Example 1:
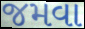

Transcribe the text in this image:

જમવા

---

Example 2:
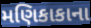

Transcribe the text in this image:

મણિકાકાના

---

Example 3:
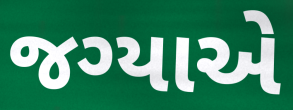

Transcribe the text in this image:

જગ્યાએ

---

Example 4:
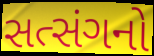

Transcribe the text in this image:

સત્સંગનો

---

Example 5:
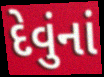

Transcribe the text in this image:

દેવુંનાં